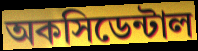
অকসিডেন্টাল